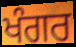
ਖੰਗਰ